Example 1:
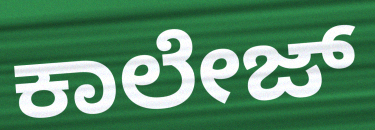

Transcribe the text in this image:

ಕಾಲೇಜ್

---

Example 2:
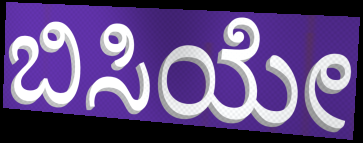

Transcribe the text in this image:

ಬಿಸಿಯೇ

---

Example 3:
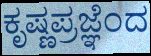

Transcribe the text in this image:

ಕೃಷ್ಣಪ್ರಜ್ಞೆಂದ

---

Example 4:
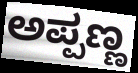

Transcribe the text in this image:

ಅಪ್ಪಣ್ಣ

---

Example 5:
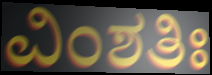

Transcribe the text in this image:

ವಿಂಶತಿಃ